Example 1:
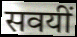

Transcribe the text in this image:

सवयीं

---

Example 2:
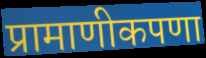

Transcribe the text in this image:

प्रामाणीकपणा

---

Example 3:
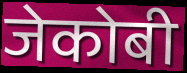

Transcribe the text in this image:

जेकोबी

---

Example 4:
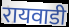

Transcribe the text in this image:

रायवाडी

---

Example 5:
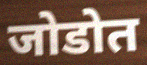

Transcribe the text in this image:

जोडोत